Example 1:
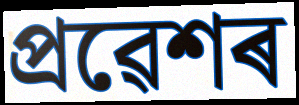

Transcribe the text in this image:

প্ৰৱেশৰ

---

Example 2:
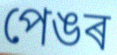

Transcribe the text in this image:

পেঙৰ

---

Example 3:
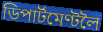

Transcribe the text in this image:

ডিপাৰ্টমেণ্টলৈ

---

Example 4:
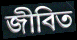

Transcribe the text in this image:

জীবিত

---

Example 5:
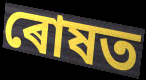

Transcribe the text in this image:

ৰোষত